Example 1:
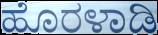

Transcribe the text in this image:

ಹೊರಳಾಡಿ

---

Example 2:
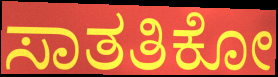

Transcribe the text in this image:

ಸಾತತಿಕೋ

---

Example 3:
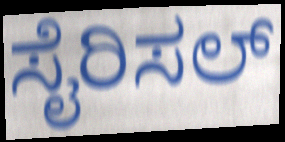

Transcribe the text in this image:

ಸೈರಿಸಲ್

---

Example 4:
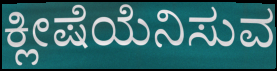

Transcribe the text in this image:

ಕ್ಲೀಷೆಯೆನಿಸುವ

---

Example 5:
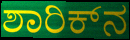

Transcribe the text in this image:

ಶಾರಿಕ್‌ನ